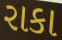
રાકા